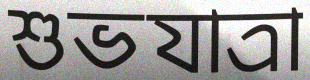
শুভযাত্রা